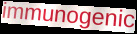
immunogenic